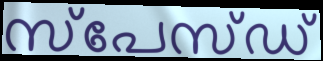
സ്പേസ്ഡ്